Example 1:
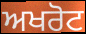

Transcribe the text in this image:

ਅਖਰੋਟ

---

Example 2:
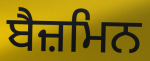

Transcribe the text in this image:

ਬੈਜ਼ਮਿਨ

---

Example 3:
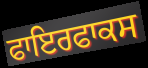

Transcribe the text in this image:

ਫਾਇਰਫਾਕਸ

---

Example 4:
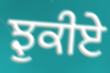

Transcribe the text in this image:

ਝੁਕੀਏ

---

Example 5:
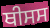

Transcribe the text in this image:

ਥੀਸਸ